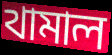
থামাল